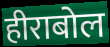
हीराबोल